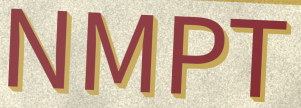
NMPT